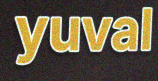
yuval